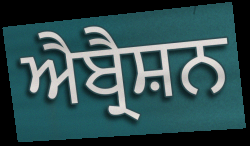
ਐਬ੍ਰੈਸ਼ਨ